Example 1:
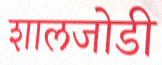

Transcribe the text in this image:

शालजोडी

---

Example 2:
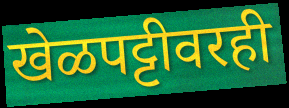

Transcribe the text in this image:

खेळपट्टीवरही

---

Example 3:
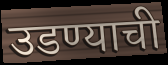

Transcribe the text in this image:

उडण्याची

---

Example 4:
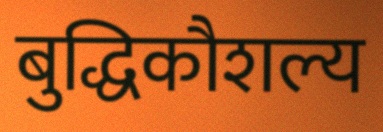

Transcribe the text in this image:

बुद्धिकौशल्य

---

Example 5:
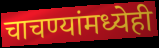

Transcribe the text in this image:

चाचण्यांमध्येही